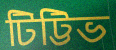
টিট্টিভ